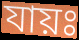
যায়ঃ